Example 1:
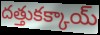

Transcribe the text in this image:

దత్తుకక్కాయ్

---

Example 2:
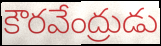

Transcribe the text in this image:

కౌరవేంద్రుడు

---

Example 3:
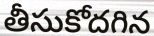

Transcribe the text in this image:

తీసుకోదగిన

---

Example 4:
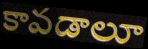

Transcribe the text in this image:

కావడాలూ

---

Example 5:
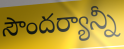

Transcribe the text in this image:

సౌందర్యాన్నీ